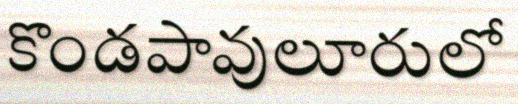
కొండపావులూరులో